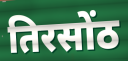
तिरसोंठ